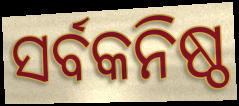
ସର୍ବକନିଷ୍ଠ